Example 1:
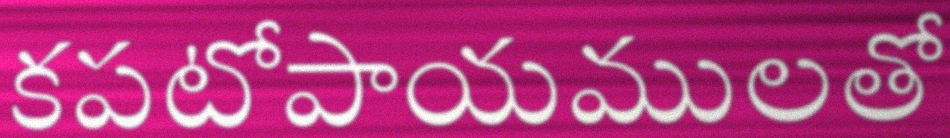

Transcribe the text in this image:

కపటోపాయములతో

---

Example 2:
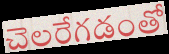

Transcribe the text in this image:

చెలరేగడంతో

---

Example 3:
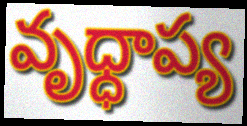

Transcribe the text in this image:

వృధ్ధాప్య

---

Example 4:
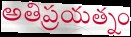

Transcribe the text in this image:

అతిప్రయత్నం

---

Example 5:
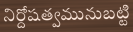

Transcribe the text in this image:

నిర్దోషత్వమునుబట్టి